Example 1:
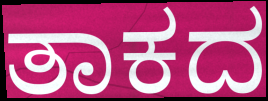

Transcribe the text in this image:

ತಾಕದ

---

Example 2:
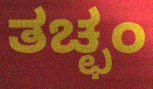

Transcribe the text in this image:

ತಚ್ಛಂ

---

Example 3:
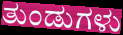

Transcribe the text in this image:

ತುಂಡುಗಳು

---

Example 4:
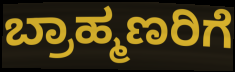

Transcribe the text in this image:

ಬ್ರಾಹ್ಮಣರಿಗೆ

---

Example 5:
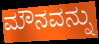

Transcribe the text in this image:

ಮೌನವನ್ನು